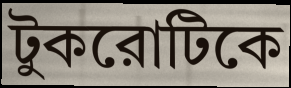
টুকরোটিকে